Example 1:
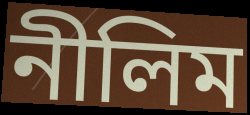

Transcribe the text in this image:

নীলিম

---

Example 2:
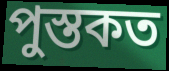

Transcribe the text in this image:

পুস্তকত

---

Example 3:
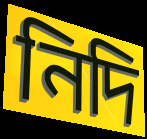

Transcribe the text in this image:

নিদি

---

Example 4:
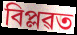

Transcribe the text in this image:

বিপ্লৱত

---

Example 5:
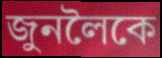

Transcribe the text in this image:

জুনলৈকে